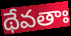
థేవతాః